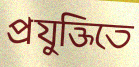
প্রযুক্তিতে